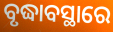
ବୃଦ୍ଧାବସ୍ଥାରେ